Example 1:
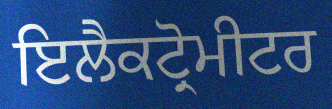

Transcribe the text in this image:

ਇਲੈਕਟ੍ਰੋਮੀਟਰ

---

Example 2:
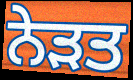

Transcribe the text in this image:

ਨੇੜਤ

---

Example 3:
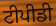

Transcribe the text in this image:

ਟੀਪੀਡੀ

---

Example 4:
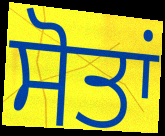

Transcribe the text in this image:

ਸੋਤਾਂ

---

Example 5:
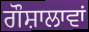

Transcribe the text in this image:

ਗੌਸ਼ਾਲਾਵਾਂ